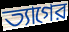
ত্যাগের